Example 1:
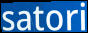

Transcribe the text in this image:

satori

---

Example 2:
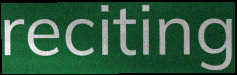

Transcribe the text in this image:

reciting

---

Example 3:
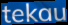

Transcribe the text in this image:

tekau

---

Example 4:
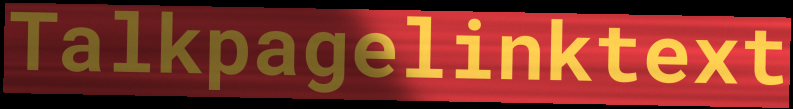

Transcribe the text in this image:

Talkpagelinktext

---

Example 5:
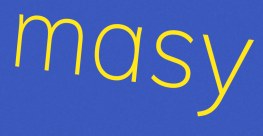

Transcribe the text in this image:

masy